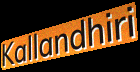
Kallandhiri